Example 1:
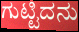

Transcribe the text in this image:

ಗುಟ್ಟಿದನು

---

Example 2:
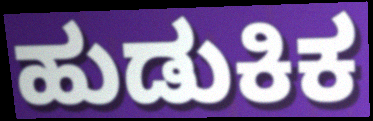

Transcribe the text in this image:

ಹುಡುಕಿಕ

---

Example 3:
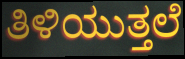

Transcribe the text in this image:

ತಿಳಿಯುತ್ತಲೆ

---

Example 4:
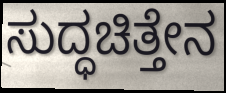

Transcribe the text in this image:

ಸುದ್ಧಚಿತ್ತೇನ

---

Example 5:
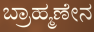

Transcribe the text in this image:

ಬ್ರಾಹ್ಮಣೇನ